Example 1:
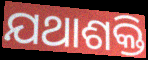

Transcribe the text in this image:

ଯଥାଶକ୍ତି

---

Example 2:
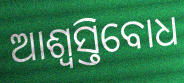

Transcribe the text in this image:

ଆଶ୍ଵସ୍ତିବୋଧ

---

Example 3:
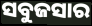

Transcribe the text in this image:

ସବୁଜସାର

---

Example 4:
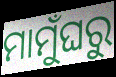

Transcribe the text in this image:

ମାମୁଁଘରୁ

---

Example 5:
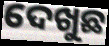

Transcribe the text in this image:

ଦେଖୁଛ